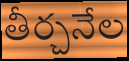
తీర్చనేల